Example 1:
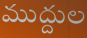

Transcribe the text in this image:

ముద్దుల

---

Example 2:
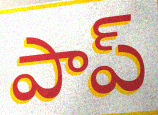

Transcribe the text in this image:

పాప్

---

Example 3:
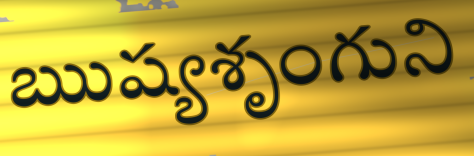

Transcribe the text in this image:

ఋష్యశృంగుని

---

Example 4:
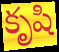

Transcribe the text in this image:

కృషి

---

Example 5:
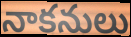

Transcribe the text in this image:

నాకనులు